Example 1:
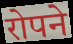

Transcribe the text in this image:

रोपने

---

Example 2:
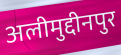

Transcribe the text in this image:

अलीमुद्दीनपुर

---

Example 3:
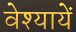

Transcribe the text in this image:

वेश्यायें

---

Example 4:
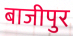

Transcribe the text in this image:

बाजीपुर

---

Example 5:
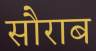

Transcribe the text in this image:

सौराब